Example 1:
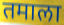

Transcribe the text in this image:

तमाला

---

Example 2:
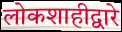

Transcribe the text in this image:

लोकशाहीद्वारे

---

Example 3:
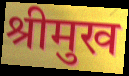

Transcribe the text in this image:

श्रीमुख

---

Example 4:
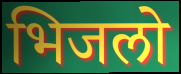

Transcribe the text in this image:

भिजलो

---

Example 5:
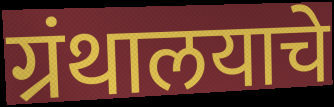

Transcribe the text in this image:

ग्रंथालयाचे